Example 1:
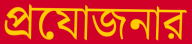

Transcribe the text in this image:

প্রযোজনার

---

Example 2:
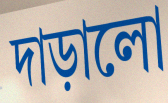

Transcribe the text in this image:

দাড়ালো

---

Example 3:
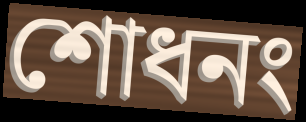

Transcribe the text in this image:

শোধনং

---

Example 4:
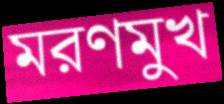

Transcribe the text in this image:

মরণমুখ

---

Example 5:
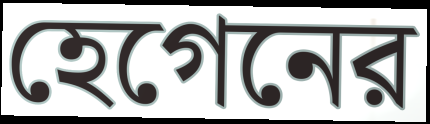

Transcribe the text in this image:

হেগেনের